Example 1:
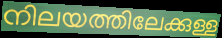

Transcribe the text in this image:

നിലയത്തിലേക്കുള്ള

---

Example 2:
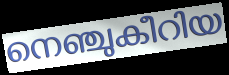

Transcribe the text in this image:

നെഞ്ചുകീറിയ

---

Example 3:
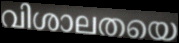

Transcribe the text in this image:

വിശാലതയെ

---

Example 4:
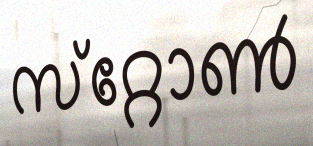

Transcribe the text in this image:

സ്‌റ്റോൺ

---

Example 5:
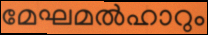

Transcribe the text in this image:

മേഘമൽഹാറും